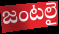
జంటలై